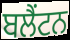
ਬਲੈਂਟਨ